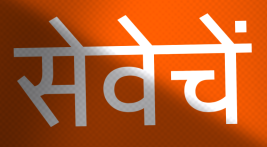
सेवेचें